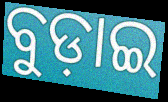
ବୁଡ଼ାଇ